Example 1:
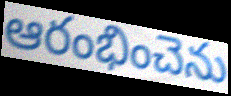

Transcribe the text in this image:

ఆరంభించెను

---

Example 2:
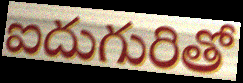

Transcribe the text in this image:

ఐదుగురితో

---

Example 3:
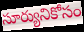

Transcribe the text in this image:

సూర్యునికోసం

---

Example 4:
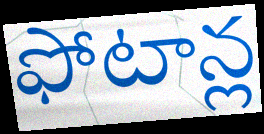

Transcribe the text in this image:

ఫోటాన్ల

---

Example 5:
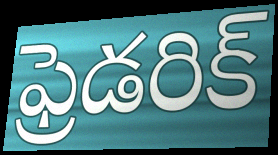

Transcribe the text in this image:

ఫ్రెడరిక్